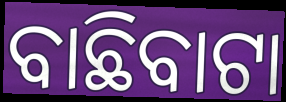
ବାଛିବାଟା